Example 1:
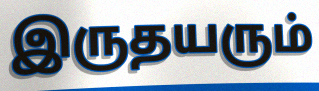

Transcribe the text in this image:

இருதயரும்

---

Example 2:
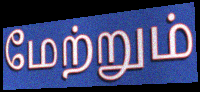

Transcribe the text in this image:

மேற்றும்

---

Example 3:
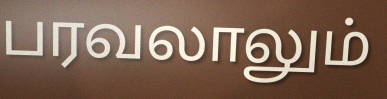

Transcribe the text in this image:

பரவலாலும்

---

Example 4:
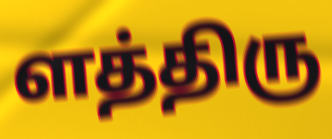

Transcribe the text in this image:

ளத்திரு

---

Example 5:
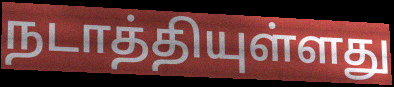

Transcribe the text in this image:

நடாத்தியுள்ளது